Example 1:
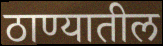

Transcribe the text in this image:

ठाण्यातील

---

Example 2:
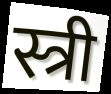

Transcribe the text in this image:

स्त्री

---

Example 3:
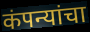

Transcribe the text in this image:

कंपन्यांचा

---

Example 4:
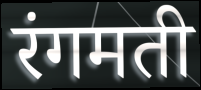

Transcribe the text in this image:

रंगमती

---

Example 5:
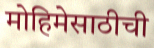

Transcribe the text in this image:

मोहिमेसाठीची